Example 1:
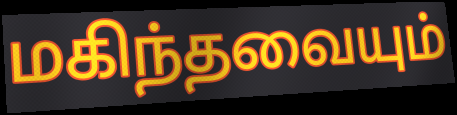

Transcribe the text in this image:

மகிந்தவையும்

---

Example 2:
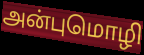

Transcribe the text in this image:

அன்புமொழி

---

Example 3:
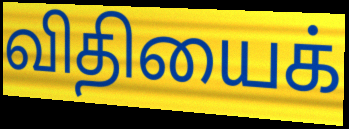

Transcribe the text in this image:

விதியைக்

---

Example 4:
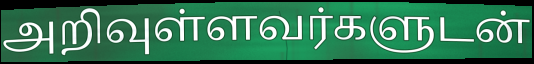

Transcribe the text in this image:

அறிவுள்ளவர்களுடன்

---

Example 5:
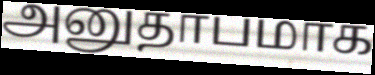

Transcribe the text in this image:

அனுதாபமாக